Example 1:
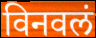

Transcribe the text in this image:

विनवलं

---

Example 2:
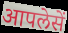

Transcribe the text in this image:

आपलेसें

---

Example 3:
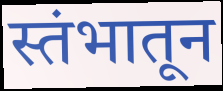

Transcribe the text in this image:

स्तंभातून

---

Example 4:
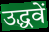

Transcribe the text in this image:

उद्धवें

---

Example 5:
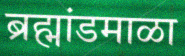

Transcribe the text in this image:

ब्रह्मांडमाळा